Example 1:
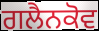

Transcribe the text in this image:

ਗਲੈਨਕੋਵ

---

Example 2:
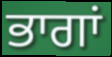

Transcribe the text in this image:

ਭਾਗਾਂ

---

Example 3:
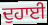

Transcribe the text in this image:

ਦੁਹਾਈ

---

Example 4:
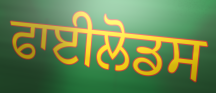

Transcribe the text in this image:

ਫਾਈਲੋਡਸ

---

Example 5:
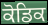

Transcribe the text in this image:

ਕੋਡਿਕ